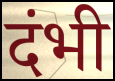
दंभी